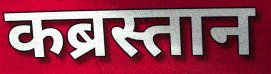
कब्रस्तान